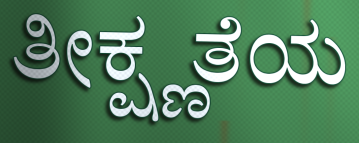
ತೀಕ್ಷ್ಣತೆಯ